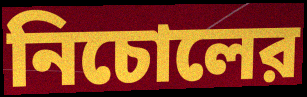
নিচোলের